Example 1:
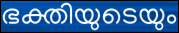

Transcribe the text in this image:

ഭക്തിയുടെയും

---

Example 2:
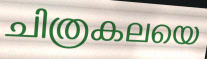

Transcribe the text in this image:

ചിത്രകലയെ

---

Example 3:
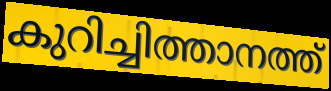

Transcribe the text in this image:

കുറിച്ചിത്താനത്ത്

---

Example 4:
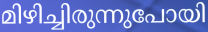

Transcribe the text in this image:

മിഴിച്ചിരുന്നുപോയി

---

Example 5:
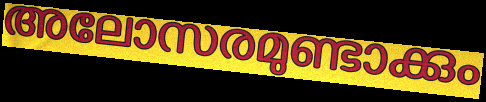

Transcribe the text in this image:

അലോസരമുണ്ടാക്കും